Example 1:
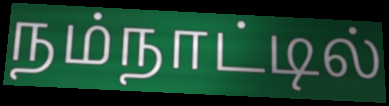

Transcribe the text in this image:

நம்நாட்டில்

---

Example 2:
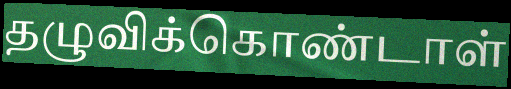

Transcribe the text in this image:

தழுவிக்கொண்டாள்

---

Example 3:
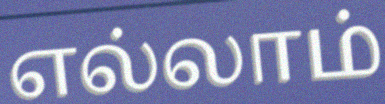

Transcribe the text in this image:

எல்லாம்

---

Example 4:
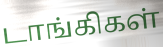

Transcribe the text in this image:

டாங்கிகள்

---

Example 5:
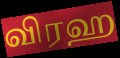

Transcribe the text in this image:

விரஹ